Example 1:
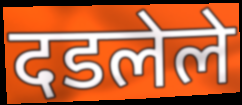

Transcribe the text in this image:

दडलेले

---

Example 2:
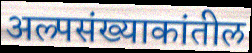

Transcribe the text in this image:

अल्पसंख्याकांतील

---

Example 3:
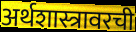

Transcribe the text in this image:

अर्थशास्त्रावरची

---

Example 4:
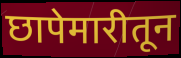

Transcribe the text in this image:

छापेमारीतून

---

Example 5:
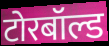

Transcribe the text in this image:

टोरबॉल्ड